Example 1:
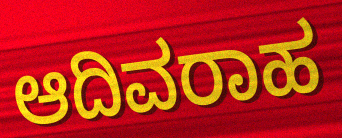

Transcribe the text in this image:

ಆದಿವರಾಹ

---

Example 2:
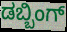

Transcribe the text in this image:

ಡಬ್ಬಿಂಗ್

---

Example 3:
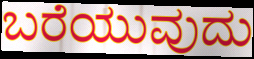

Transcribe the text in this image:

ಬರೆಯುವುದು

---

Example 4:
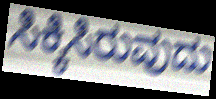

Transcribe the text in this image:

ಸಿಕ್ಕಿಸಿರುವುದು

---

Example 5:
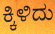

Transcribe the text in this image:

ಕ್ಕಿಳಿದು